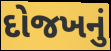
દોજખનું